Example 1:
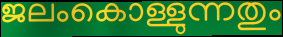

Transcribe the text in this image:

ജലംകൊള്ളുന്നതും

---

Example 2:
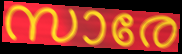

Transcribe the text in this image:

സാരേ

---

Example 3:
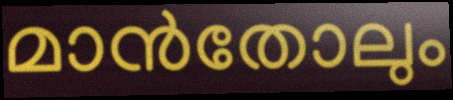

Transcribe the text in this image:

മാൻതോലും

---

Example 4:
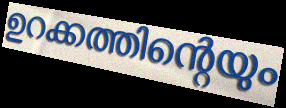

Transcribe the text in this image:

ഉറക്കത്തിന്റെയും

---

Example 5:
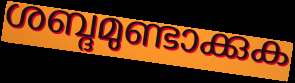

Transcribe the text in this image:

ശബ്ദമുണ്ടാക്കുക